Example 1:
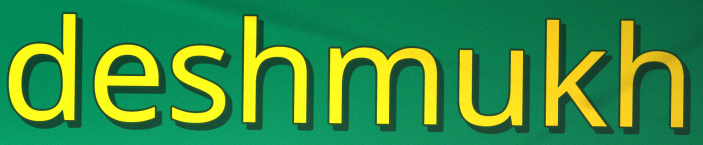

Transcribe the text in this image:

deshmukh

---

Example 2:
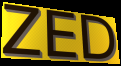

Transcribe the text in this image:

ZED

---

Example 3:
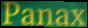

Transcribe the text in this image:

Panax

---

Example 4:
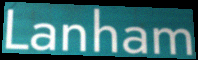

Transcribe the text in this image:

Lanham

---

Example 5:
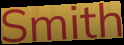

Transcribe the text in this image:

Smith